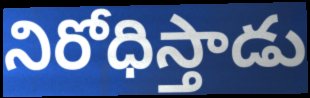
నిరోధిస్తాడు